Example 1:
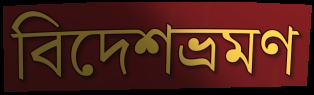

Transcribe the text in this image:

বিদেশভ্রমণ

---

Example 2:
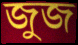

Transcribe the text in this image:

জুজ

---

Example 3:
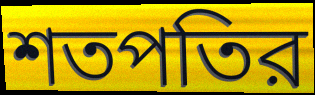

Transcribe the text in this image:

শতপতির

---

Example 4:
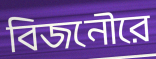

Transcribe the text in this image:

বিজনৌরে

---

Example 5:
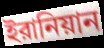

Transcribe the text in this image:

ইরানিয়ান